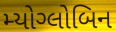
મ્યોગ્લોબિન